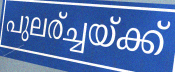
പുലര്ച്ചയ്ക്ക്